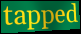
tapped